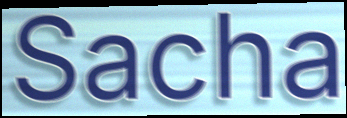
Sacha